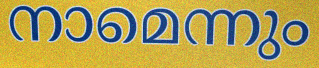
നാമെന്നും